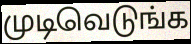
முடிவெடுங்க